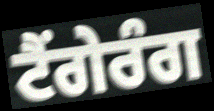
ਟੈਂਗੇਰੰਗ